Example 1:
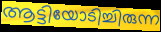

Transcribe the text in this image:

ആട്ടിയോടിച്ചിരുന്ന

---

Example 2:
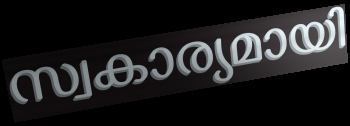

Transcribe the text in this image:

സ്വകാര്യമായി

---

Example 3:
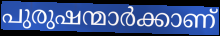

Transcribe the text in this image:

പുരുഷന്മാർക്കാണ്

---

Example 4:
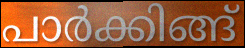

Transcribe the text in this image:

പാർക്കിങ്ങ്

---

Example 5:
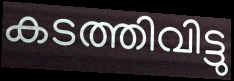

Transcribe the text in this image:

കടത്തിവിട്ടു